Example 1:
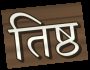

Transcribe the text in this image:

तिष्ठ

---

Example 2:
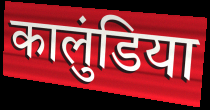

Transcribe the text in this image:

कालुंडिया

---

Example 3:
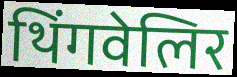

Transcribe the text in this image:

थिंगवेलिर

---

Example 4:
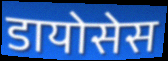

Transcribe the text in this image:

डायोसेस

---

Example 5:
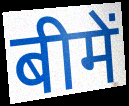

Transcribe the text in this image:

बीमें